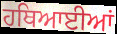
ਹਥਿਆਈਆਂ